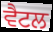
ਵੈਟਲ